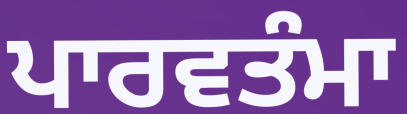
ਪਾਰਵਤੰਮਾ